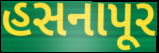
હસનાપૂર